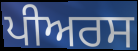
ਪੀਅਰਸ